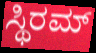
ಸ್ಥಿರಮ್